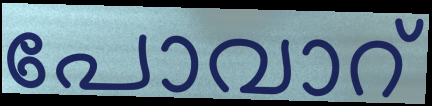
പോവാറ്